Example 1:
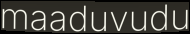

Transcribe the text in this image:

maaduvudu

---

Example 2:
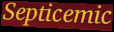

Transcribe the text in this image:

Septicemic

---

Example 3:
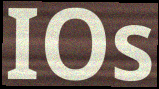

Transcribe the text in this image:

IOs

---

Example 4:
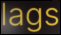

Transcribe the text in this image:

lags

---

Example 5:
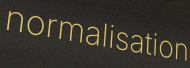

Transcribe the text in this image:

normalisation